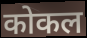
कोकल